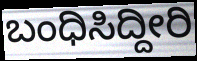
ಬಂಧಿಸಿದ್ದೀರಿ